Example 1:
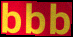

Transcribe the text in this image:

bbb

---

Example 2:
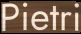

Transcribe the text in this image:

Pietri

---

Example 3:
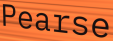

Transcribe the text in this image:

Pearse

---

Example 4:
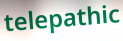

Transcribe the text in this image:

telepathic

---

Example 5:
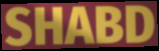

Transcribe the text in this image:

SHABD